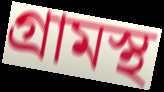
গ্রামস্থ